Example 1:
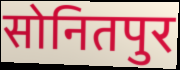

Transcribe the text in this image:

सोनितपुर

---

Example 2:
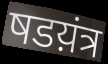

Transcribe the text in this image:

षडय़ंत्र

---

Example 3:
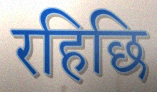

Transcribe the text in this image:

रहिछि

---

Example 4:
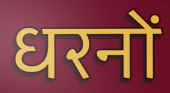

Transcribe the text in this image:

धरनों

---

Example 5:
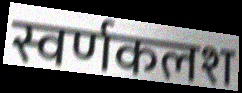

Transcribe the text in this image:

स्वर्णकलश